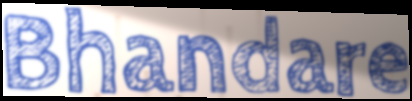
Bhandare